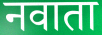
नवाता